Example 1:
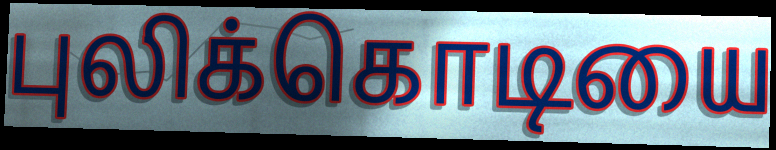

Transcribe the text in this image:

புலிக்கொடியை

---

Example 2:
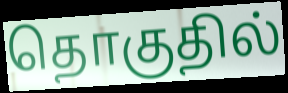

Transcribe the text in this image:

தொகுதில்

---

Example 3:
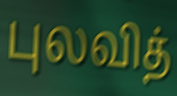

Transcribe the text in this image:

புலவித்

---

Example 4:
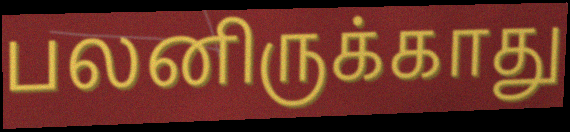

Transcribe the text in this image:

பலனிருக்காது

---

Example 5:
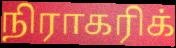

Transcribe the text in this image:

நிராகரிக்